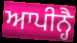
ਆਪੀਨ੍ਹ੍ਹੈ